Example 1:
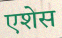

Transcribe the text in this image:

एशेस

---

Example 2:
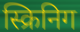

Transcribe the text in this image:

स्क्रिनिग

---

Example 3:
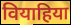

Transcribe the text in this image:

वियाहिया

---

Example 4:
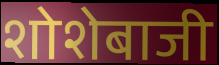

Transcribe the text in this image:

शोशेबाजी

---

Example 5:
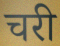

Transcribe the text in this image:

चरी